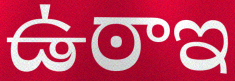
ఉఠాఇ